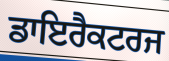
ਡਾਇਰੈਕਟਰਜ